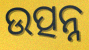
ଉତ୍ପନ୍ନ